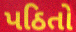
પઠિતો